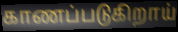
காணப்படுகிறாய்